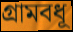
গ্রামবধূ